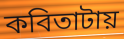
কবিতাটায়